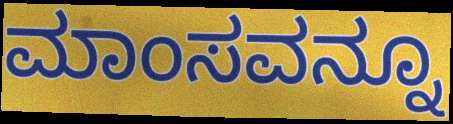
ಮಾಂಸವನ್ನೂ